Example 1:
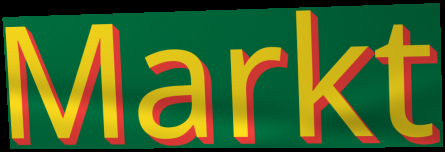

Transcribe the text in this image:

Markt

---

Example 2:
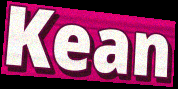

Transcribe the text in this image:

Kean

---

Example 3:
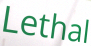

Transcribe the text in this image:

Lethal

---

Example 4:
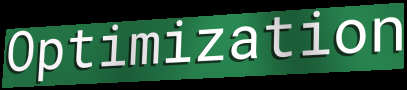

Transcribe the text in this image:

Optimization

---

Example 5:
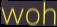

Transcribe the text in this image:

woh